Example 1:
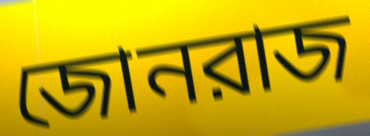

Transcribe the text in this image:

জোনরাজ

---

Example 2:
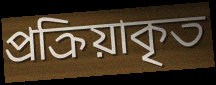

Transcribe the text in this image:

প্রক্রিয়াকৃত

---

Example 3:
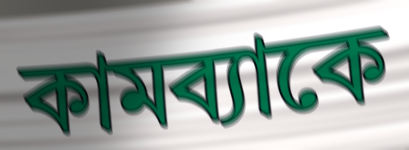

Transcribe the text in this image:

কামব্যাকে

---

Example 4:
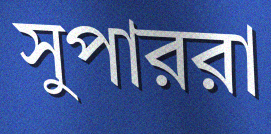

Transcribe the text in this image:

সুপাররা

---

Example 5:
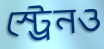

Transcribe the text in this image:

স্ট্রেনও